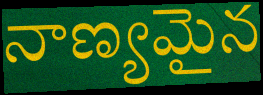
నాణ్యమైన